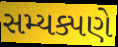
સમ્યક્પણે